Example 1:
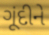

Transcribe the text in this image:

ગૂંદીને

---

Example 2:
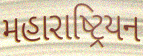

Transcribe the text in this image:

મહારાષ્ટ્રિયન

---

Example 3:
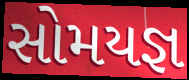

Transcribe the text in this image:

સોમયજ્ઞ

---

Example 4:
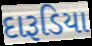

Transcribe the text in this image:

દારૂડિયા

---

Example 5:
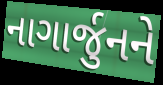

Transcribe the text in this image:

નાગાર્જુનને